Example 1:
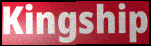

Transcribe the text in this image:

Kingship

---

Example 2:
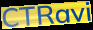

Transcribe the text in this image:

CTRavi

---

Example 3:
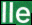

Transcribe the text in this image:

lle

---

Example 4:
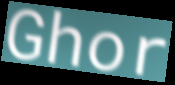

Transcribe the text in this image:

Ghor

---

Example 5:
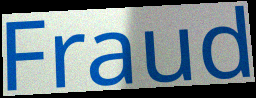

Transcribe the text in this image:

Fraud